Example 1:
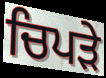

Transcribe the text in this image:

ਚਿਪੜੇ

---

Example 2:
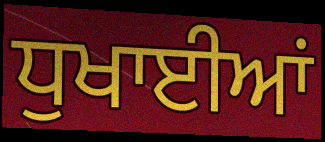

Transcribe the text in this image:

ਧੁਖਾਈਆਂ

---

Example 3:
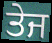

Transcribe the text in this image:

ਤੇਜ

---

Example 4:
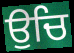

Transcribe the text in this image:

ਉਚਿ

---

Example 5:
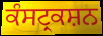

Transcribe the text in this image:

ਕੰਸਟ੍ਰਕਸ਼ਨ